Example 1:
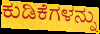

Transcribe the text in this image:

ಕುಡಿಕೆಗಳನ್ನು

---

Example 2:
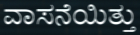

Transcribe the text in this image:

ವಾಸನೆಯಿತ್ತು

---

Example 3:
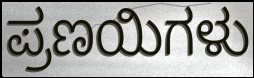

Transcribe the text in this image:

ಪ್ರಣಯಿಗಳು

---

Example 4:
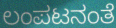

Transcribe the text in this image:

ಲಂಪಟನಂತೆ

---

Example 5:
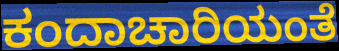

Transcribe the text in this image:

ಕಂದಾಚಾರಿಯಂತೆ